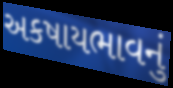
અકષાયભાવનું